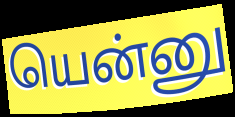
யென்னு